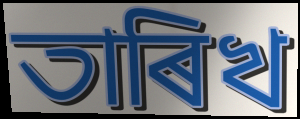
তাৰিখ